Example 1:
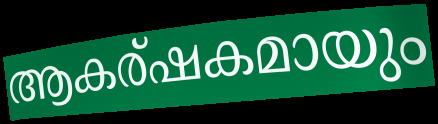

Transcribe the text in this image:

ആകര്ഷകമായും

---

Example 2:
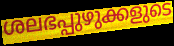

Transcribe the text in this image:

ശലഭപ്പുഴുക്കളുടെ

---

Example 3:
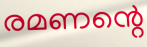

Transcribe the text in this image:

രമണന്റെ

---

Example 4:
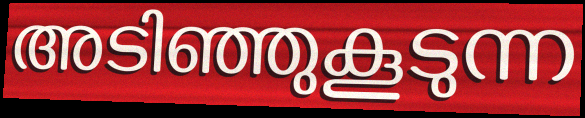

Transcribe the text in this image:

അടിഞ്ഞുകൂടുന്ന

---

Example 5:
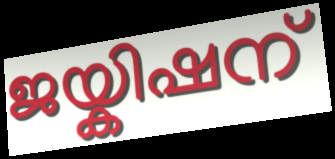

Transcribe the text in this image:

ജയ്കിഷന്